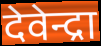
देवेन्द्रा